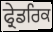
ਫ੍ਰੇਡਰਿਕ